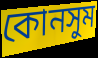
কোনসুম